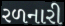
રળનારી